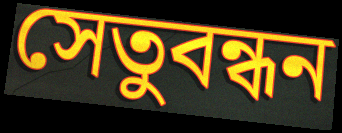
সেতুবন্ধন